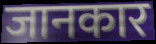
जानकार